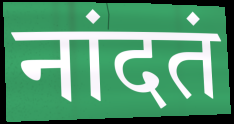
नांदतं